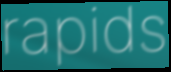
rapids